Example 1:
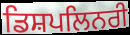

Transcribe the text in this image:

ਡਿਸ਼ਪਲਿਨਰੀ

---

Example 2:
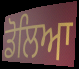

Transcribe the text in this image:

ਡੋਲਿਆ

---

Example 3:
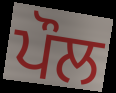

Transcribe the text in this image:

ਪੌਲ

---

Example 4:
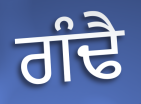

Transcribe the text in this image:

ਗੰਢੈ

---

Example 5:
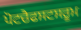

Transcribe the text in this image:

ਪੋਟਚੈਫਸਟਸਰੂਮ